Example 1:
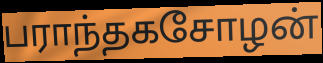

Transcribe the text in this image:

பராந்தகசோழன்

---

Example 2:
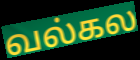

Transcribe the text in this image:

வல்கல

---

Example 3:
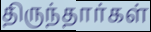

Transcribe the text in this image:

திருந்தார்கள்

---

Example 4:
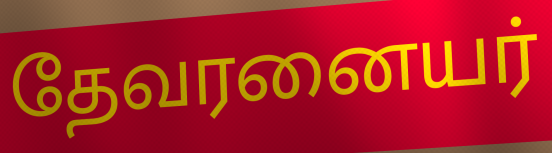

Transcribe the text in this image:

தேவரனையர்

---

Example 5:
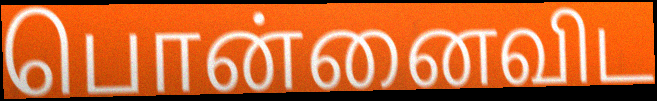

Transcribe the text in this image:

பொன்னைவிட